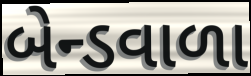
બેન્ડવાળા